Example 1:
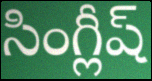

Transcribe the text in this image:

సింగ్లీష్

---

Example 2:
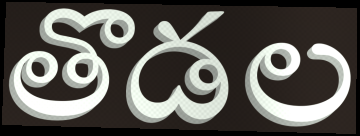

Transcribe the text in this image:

తొడల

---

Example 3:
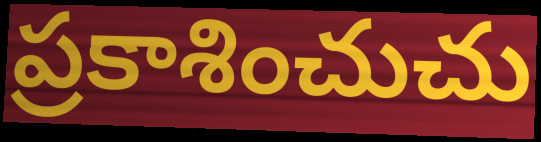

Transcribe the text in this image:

ప్రకాశించుచు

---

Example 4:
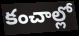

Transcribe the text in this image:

కంచాల్లో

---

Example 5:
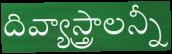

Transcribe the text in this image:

దివ్యాస్త్రాలన్నీ